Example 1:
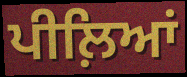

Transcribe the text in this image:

ਪੀਲ਼ਿਆਂ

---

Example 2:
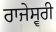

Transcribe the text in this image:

ਰਾਜੇਸ੍ਵਰੀ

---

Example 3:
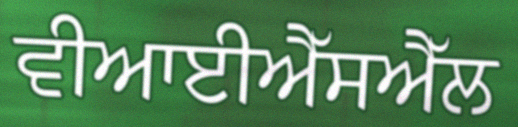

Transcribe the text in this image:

ਵੀਆਈਐੱਸਐੱਲ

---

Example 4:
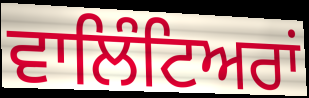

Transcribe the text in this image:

ਵਾਲਿੰਟਿਅਰਾਂ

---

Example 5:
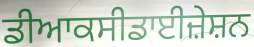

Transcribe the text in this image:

ਡੀਆਕਸੀਡਾਈਜ਼ੇਸ਼ਨ